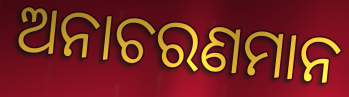
ଅନାଚରଣମାନ